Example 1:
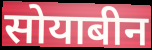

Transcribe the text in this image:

सोयाबीन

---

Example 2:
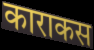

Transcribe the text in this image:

काराकस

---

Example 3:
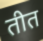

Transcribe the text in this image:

तीत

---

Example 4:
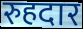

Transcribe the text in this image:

रुहदार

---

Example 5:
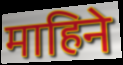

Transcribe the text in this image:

माहिने